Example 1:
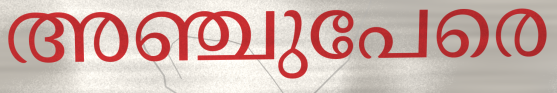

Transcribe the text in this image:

അഞ്ചുപേരെ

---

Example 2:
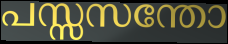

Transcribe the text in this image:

പസ്സസന്തോ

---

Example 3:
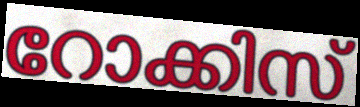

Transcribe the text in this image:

റോക്കിസ്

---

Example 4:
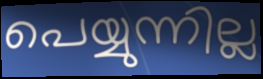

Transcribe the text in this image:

പെയ്യുന്നില്ല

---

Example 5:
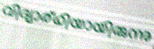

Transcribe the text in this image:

വിദ്യാര്ഥിയായിരുന്നു